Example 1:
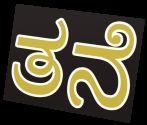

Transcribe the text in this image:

ತನೆ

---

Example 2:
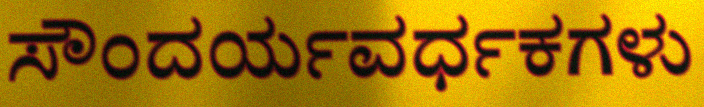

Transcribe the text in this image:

ಸೌಂದರ್ಯವರ್ಧಕಗಳು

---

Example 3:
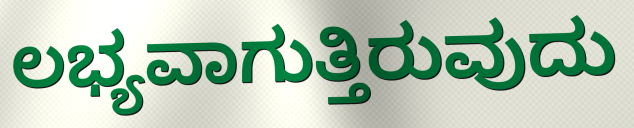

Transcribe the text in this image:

ಲಭ್ಯವಾಗುತ್ತಿರುವುದು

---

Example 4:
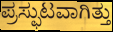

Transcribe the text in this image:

ಪ್ರಸ್ಫುಟವಾಗಿತ್ತು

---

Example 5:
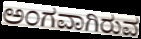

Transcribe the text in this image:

ಅಂಗವಾಗಿರುವ